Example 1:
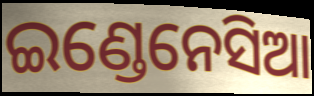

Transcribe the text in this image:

ଇଣ୍ଡେନେସିଆ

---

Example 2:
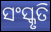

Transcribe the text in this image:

ସଂସ୍କୃତି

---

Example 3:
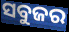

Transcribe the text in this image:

ସବୁଜର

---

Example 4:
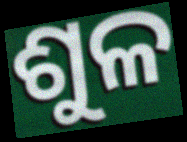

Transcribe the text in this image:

ଶୁଳ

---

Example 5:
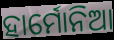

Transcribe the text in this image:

ହାର୍ମୋନିଆ